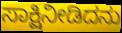
ಸಾಕ್ಷಿನೀಡಿದನು